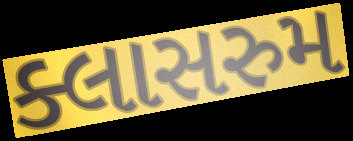
ક્લાસરુમ